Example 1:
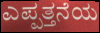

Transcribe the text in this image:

ಎಪ್ಪತ್ತನೆಯ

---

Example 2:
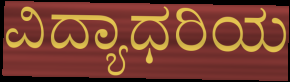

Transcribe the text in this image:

ವಿದ್ಯಾಧರಿಯ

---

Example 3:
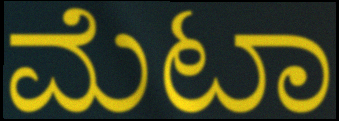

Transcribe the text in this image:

ಮೆಟಾ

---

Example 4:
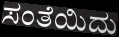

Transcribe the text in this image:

ಸಂತೆಯಿದು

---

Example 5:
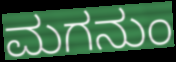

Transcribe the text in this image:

ಮಗನುಂ